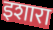
इशारा